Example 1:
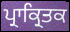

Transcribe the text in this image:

ਪ੍ਰਾਕ੍ਰਿਤਕ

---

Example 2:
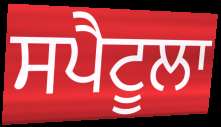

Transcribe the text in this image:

ਸਪੈਟੂਲਾ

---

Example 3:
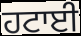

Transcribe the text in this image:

ਹਟਾਈ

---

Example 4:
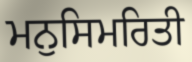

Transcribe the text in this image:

ਮਨੁਸਿਮਰਿਤੀ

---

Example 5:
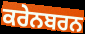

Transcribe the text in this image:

ਕਰੇਨਬਰਨ